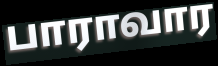
பாராவார